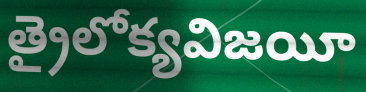
త్రైలోక్యవిజయీ